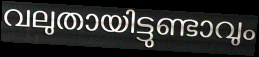
വലുതായിട്ടുണ്ടാവും